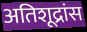
अतिशूद्रांस